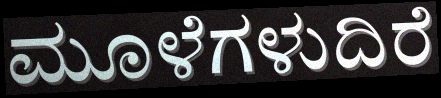
ಮೂಳೆಗಳುದಿರೆ